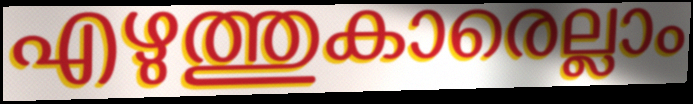
എഴുത്തുകാരെല്ലാം